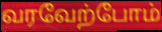
வரவேற்போம்